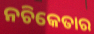
ନଚିକେତାର